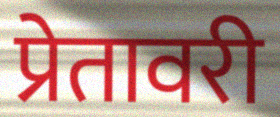
प्रेतावरी